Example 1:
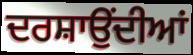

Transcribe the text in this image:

ਦਰਸ਼ਾਉਂਦੀਆਂ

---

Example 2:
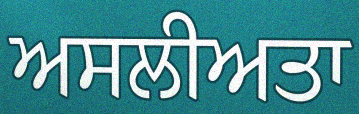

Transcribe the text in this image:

ਅਸਲੀਅਤਾ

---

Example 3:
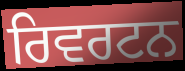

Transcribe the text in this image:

ਰਿਵਰਟਨ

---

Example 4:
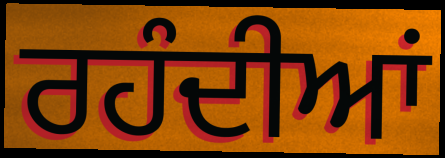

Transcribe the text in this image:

ਰਹੰਦੀਆਂ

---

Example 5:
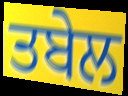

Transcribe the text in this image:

ਤਬੇਲ